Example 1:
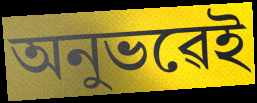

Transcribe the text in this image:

অনুভৱেই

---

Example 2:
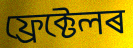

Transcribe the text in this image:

ফ্ৰেক্টেলৰ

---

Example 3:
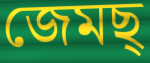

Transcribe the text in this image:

জেমছ্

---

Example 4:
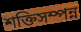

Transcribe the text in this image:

শক্তিসম্পন্ন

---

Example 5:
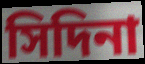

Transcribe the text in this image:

সিদিনা